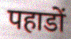
पहाडों